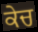
ਕੇਚ